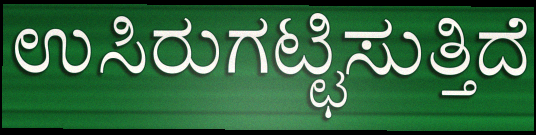
ಉಸಿರುಗಟ್ಟಿಸುತ್ತಿದೆ